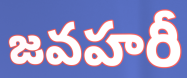
జవహరీ